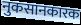
नुकसानकारक